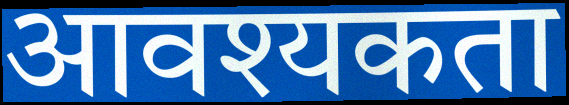
आवश्‍यकता